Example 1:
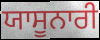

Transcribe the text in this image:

ਯਾਸੂਨਾਰੀ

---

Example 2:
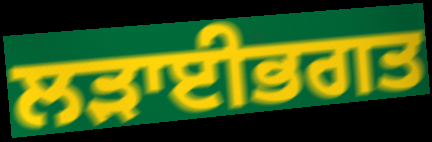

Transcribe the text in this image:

ਲੜਾਈਭਗਤ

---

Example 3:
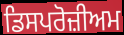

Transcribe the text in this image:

ਡਿਸਪਰੋਜ਼ੀਅਮ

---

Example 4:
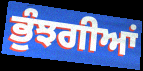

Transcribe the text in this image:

ਭੁੰਝਗੀਆਂ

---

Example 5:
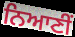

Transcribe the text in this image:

ਨਿਆਣੀਂ